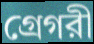
গ্রেগরী